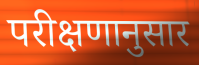
परीक्षणानुसार